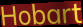
Hobart